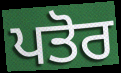
ਪਤੋਰ